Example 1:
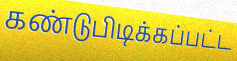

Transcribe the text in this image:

கண்டுபிடிக்கப்பட்ட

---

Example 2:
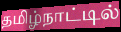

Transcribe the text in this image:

தமிழ்நாட்டில்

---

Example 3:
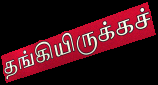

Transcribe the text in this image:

தங்கியிருக்கச்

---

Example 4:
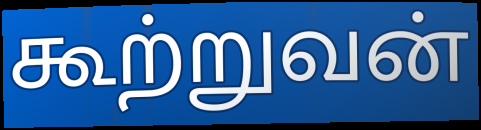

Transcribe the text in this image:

கூற்றுவன்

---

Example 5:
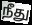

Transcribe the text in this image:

நீது